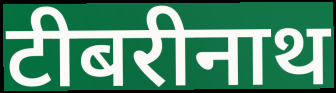
टीबरीनाथ